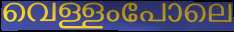
വെള്ളംപോലെ